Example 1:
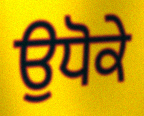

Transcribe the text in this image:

ਉਧੋਕੇ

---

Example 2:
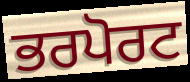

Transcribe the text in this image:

ਭਰਪੋਰਟ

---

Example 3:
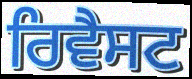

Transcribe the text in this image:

ਰਿਵੈਸਟ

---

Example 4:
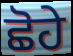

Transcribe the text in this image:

ਛੋਹੇ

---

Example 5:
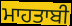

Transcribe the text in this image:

ਮਾਹਤਾਬੀ